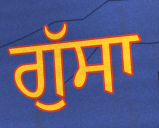
ਗੁੱਸਾ